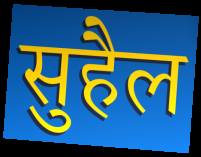
सुहैल